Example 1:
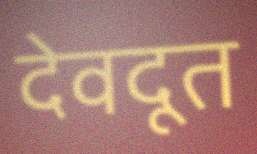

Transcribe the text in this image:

देवदूत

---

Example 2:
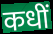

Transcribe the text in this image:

कधीं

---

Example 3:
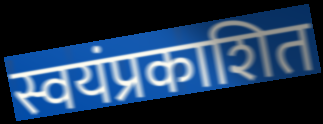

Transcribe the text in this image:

स्वयंप्रकाशित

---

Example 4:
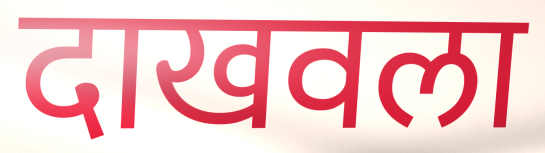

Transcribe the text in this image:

दाखवला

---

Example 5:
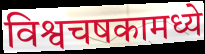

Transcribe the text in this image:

विश्वचषकामध्ये